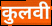
कुलवी